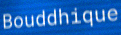
Bouddhique